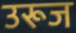
उरूज